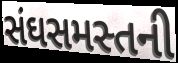
સંઘસમસ્તની